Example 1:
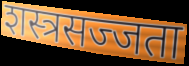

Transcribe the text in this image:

शस्त्रसज्जता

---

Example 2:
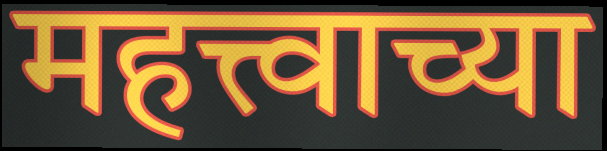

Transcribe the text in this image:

महत्त्वाच्या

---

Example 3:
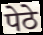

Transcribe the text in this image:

पेठे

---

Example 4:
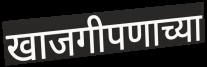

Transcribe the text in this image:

खाजगीपणाच्या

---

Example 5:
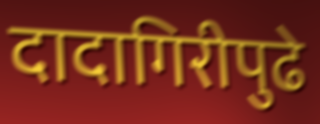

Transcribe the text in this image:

दादागिरीपुढे